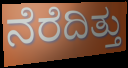
ನೆರೆದಿತ್ತು